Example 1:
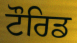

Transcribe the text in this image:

ਟੌਰਿਡ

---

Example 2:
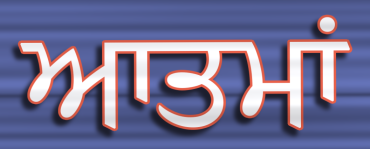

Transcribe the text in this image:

ਆਤਮਾਂ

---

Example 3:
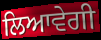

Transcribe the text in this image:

ਲਿਆਵੇਗੀ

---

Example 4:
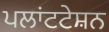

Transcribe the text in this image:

ਪਲਾਂਟਟੇਸ਼ਨ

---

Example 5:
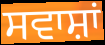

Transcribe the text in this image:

ਸਵਾਸ਼ਾਂ